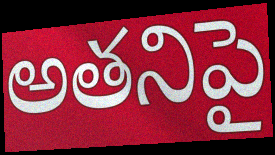
అతనిపై